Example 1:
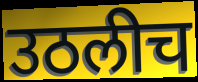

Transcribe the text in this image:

उठलीच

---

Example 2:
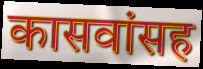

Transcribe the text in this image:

कासवांसह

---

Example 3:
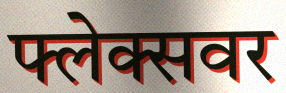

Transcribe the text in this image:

फ्लेक्सवर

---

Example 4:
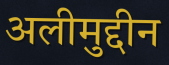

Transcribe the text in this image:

अलीमुद्दीन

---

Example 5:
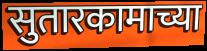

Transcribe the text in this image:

सुतारकामाच्या